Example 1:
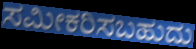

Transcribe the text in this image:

ಸಮೀಕರಿಸಬಹುದು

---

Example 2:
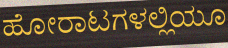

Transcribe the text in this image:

ಹೋರಾಟಗಳಲ್ಲಿಯೂ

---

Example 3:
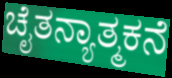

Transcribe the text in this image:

ಚೈತನ್ಯಾತ್ಮಕನೆ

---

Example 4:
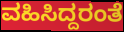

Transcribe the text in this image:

ವಹಿಸಿದ್ದರಂತೆ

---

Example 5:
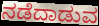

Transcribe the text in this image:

ನಡೆದಾಡುವ